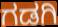
ಗಡಗಿ